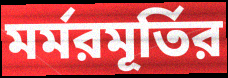
মর্মরমূর্তির